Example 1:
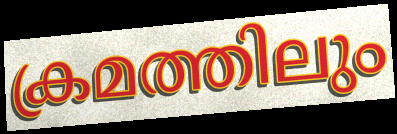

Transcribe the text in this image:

ക്രമത്തിലും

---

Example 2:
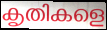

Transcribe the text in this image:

കൃതികളെ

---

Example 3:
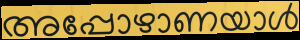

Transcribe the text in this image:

അപ്പോഴാണയാൾ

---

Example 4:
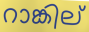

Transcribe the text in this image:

റാങ്കില്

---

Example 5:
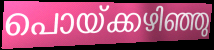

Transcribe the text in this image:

പൊയ്‌ക്കഴിഞ്ഞു